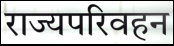
राज्यपरिवहन